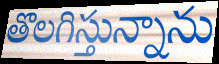
తొలగిస్తున్నాను